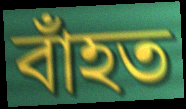
বাঁহত